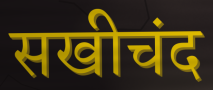
सखीचंद